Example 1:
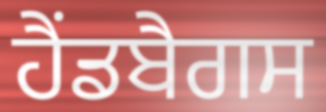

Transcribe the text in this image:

ਹੈਂਡਬੈਗਸ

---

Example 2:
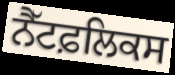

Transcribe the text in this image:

ਨੈੱਟਫ਼ਲਿਕਸ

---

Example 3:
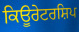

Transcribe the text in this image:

ਕਿਊਰੇਟਰਸ਼ਿਪ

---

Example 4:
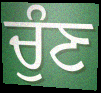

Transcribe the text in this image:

ਚੁੰਣ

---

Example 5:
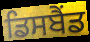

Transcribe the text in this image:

ਡਿਸਬੈਂਡ